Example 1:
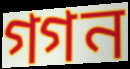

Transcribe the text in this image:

গগন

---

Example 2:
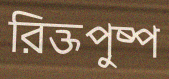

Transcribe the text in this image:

রিক্তপুষ্প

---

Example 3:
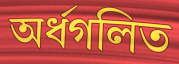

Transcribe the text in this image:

অর্ধগলিত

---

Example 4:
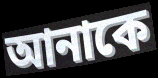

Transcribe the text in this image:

আনাকে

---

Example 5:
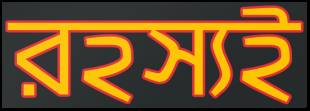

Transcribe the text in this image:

রহস্যই